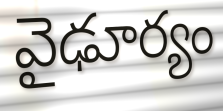
వైఢూర్యం